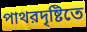
পাথরদৃষ্টিতে